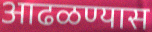
आढळण्यास